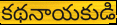
కథనాయకుడి